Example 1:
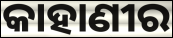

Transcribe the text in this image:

କାହାଣୀର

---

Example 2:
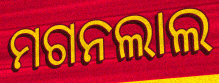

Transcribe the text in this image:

ମଗନଲାଲ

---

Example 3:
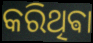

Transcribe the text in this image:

କରିଥିଵା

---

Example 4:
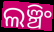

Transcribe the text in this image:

ଲଞ୍ଚିଂ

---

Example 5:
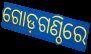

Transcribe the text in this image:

ଗୋଡ଼ଗଣ୍ଠିରେ